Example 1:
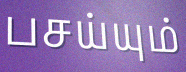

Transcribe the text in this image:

பசய்யும்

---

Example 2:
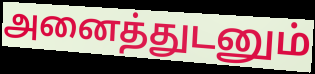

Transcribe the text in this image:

அனைத்துடனும்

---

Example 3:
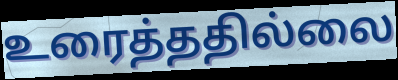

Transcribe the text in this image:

உரைத்ததில்லை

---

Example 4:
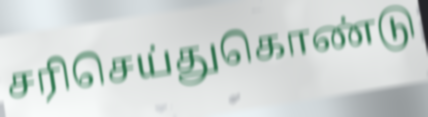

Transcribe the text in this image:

சரிசெய்துகொண்டு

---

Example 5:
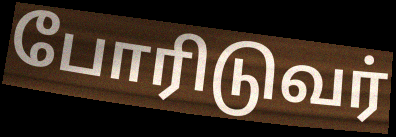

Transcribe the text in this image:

போரிடுவர்